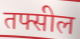
तफ्सील